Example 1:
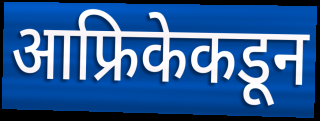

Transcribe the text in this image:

आफ्रिकेकडून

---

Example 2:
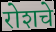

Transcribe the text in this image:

रोशचे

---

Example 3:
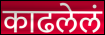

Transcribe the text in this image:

काढलेलं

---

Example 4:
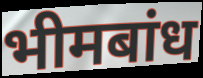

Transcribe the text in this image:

भीमबांध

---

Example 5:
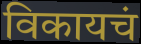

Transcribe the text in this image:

विकायचं